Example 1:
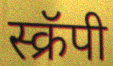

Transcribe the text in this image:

स्क्रॅपी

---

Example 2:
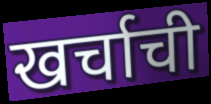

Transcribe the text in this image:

खर्चाची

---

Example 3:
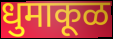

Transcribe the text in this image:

धुमाकूळ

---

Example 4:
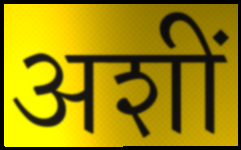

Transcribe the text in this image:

अशीं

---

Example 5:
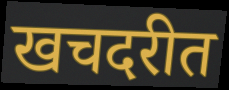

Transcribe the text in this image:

खचदरीत